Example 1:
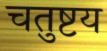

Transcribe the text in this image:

चतुष्टय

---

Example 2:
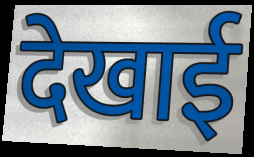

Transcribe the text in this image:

देखाई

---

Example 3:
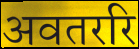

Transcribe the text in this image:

अवतररि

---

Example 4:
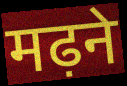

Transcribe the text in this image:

मढ़ने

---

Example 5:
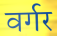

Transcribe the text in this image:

वर्गर